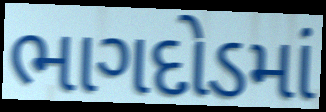
ભાગદોડમાં